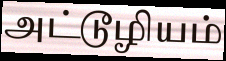
அட்டூழியம்